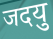
जदयु